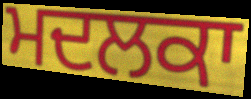
ਮਦਲਕਾ